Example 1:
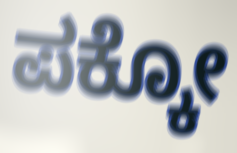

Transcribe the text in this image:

ಪಕ್ಕೋ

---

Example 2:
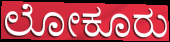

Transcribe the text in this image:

ಲೋಕೂರು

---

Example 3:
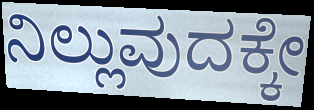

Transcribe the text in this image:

ನಿಲ್ಲುವುದಕ್ಕೇ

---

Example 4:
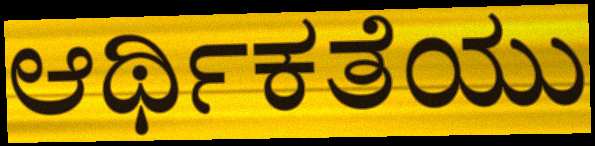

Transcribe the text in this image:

ಆರ್ಥಿಕತೆಯು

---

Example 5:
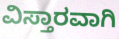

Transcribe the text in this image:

ವಿಸ್ತಾರವಾಗಿ